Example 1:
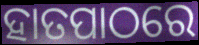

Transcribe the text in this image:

ହାତପାଠରେ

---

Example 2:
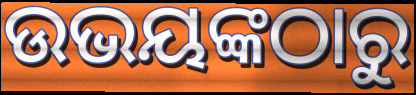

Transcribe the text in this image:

ଉଭୟଙ୍କଠାରୁ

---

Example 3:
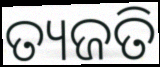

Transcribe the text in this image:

ତ୍ୟଜତି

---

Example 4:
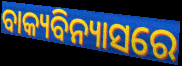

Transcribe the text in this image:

ବାକ୍ୟବିନ୍ୟାସରେ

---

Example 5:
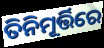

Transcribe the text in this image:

ତିନିମୂର୍ତ୍ତିରେ